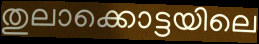
തുലാക്കൊട്ടയിലെ